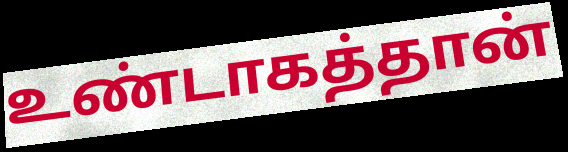
உண்டாகத்தான்